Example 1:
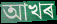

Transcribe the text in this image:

আখৰ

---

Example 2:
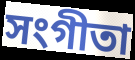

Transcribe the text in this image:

সংগীতা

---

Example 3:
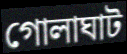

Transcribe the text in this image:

গোলাঘাট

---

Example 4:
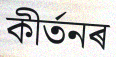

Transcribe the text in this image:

কীৰ্তনৰ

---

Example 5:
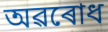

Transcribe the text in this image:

অৱৰোধ